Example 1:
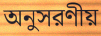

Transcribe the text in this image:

অনুসরণীয়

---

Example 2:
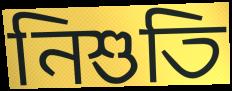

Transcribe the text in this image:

নিশুতি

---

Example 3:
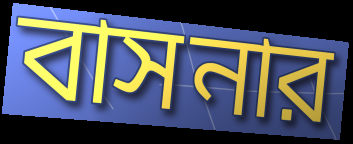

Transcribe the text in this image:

বাসনার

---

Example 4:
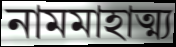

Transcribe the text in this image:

নামমাহাত্ম্য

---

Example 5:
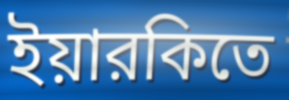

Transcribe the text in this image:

ইয়ারকিতে